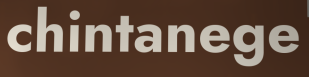
chintanege